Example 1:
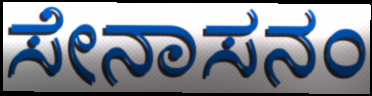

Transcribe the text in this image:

ಸೇನಾಸನಂ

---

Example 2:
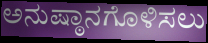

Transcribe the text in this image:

ಅನುಷ್ಠಾನಗೊಳಿಸಲು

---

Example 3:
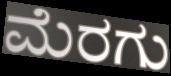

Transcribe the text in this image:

ಮೆರಗು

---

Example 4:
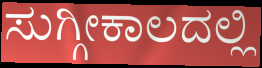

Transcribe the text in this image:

ಸುಗ್ಗೀಕಾಲದಲ್ಲಿ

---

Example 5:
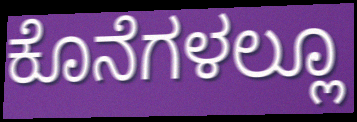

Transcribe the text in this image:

ಕೊನೆಗಳಲ್ಲೂ